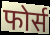
फोर्स